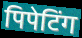
पिपेटिंग